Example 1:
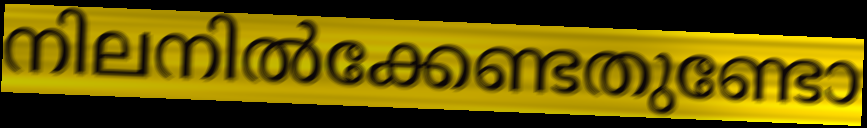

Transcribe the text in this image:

നിലനിൽക്കേണ്ടതുണ്ടോ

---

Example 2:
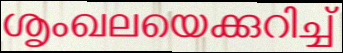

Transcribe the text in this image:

ശൃംഖലയെക്കുറിച്ച്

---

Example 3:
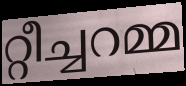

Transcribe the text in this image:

റ്റീച്ചറമ്മ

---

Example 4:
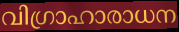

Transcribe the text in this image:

വിഗ്രാഹാരാധന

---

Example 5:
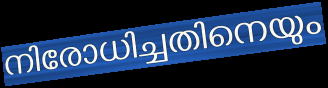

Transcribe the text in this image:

നിരോധിച്ചതിനെയും